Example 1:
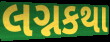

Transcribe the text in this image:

લગ્નકથા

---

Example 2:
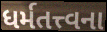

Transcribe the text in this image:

ધર્મતત્ત્વના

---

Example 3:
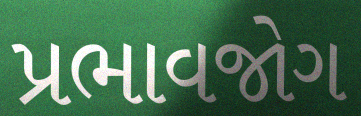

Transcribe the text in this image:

પ્રભાવજોગ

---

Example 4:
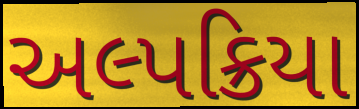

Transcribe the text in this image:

અલ્પક્રિયા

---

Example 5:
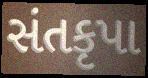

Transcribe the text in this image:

સંતકૃપા